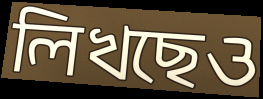
লিখছেও